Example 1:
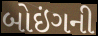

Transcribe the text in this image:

બોઇંગની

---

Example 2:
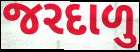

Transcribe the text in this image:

જરદાળુ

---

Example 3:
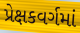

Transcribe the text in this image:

પ્રેક્ષકવર્ગમાં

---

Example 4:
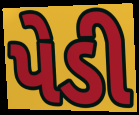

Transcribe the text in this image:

પેડી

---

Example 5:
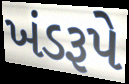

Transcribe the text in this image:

ખંડરૂપે